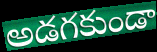
అడగకుండా